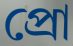
প্রো